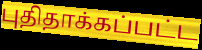
புதிதாக்கப்பட்ட